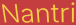
Nantri